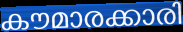
കൗമാരക്കാരി